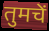
तुमचें